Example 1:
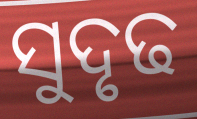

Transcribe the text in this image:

ସୁଦୃଢ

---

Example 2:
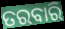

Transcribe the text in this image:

ତରବାରି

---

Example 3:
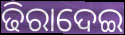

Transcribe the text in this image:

ଢିରାଦେଇ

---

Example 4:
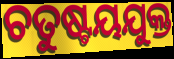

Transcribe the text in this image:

ଚତୁଷ୍ଟୟଯୁକ୍ତ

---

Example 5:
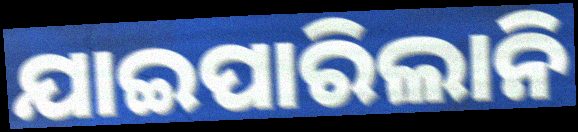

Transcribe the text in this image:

ଯାଇପାରିଲାନି